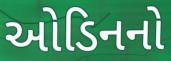
ઓડિનનો